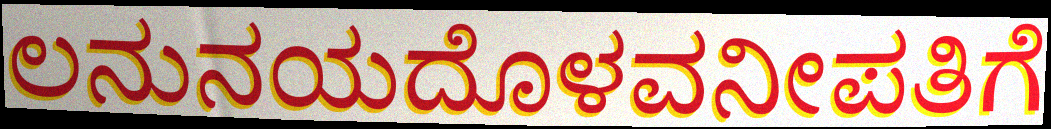
ಲನುನಯದೊಳವನೀಪತಿಗೆ